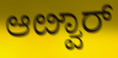
ಆೞ್ವಾರ್